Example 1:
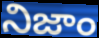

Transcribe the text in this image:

నిజాం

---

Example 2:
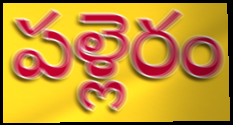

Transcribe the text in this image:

పళ్లెరం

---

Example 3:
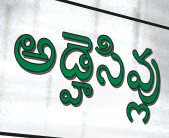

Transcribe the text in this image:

అడ్హెసివ్లు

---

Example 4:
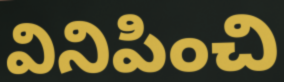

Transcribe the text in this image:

వినిపించి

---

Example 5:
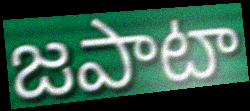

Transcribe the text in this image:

జపాటా